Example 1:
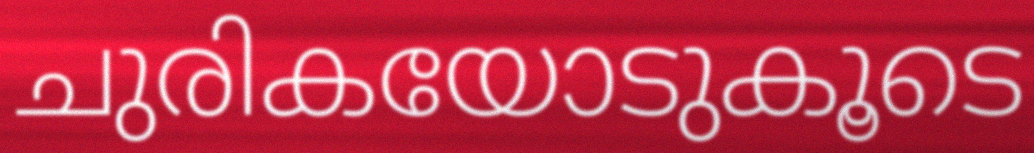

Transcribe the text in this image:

ചുരികയോടുകൂടെ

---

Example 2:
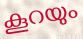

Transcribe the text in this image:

കൂറയും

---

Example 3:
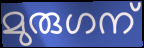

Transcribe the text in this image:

മുരുഗന്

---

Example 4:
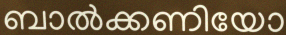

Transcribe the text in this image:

ബാൽക്കണിയോ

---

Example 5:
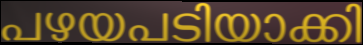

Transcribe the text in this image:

പഴയപടിയാക്കി